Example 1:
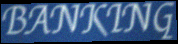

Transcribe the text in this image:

BANKING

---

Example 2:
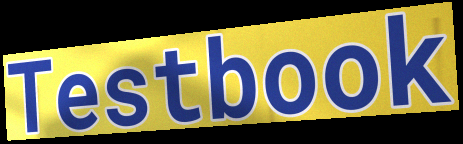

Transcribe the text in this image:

Testbook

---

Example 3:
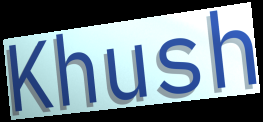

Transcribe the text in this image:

Khush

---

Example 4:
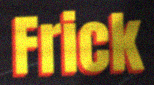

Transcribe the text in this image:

Frick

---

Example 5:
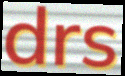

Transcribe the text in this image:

drs